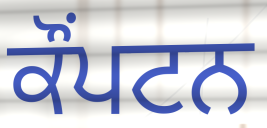
ਕੌਂਪਟਨ